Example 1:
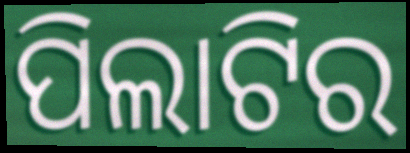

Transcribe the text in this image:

ପିଲାଟିର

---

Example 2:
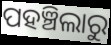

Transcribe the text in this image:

ପହଞ୍ଚିଲାରୁ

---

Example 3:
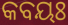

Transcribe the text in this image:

କବୟଃ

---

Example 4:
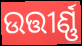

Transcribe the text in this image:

ଉତ୍ତୀର୍ଣ୍ଣ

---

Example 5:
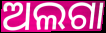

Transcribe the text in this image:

ଅଲଗା